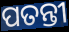
ପତନ୍ତୀ